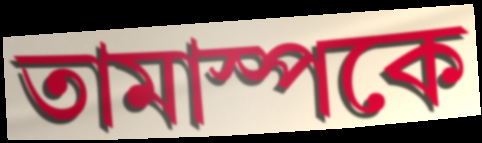
তামাস্পকে